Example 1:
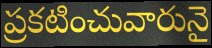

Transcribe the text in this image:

ప్రకటించువారునై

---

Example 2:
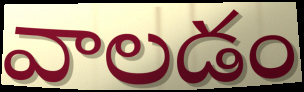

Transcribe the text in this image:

వాలడం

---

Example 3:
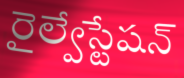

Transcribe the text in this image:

రైల్వేస్టేషన్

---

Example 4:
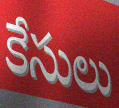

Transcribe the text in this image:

కేసులు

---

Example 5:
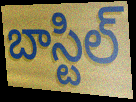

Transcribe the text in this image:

బాస్టిల్